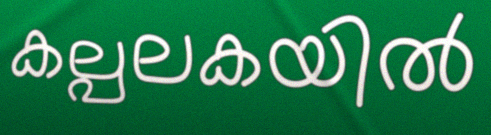
കല്പലകയിൽ